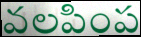
వలపింప